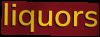
liquors